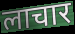
लाचार